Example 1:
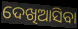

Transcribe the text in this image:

ଦେଖିଆସିବା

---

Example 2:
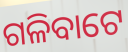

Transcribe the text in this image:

ଗଳିବାଟେ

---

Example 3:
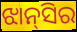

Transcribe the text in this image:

ଝାନ୍‌ସିର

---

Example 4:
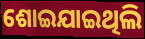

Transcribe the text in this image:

ଶୋଇଯାଇଥିଲି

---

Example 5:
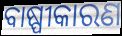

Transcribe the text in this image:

ବାଷ୍ପୀକାରଣ